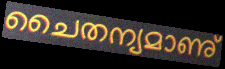
ചൈതന്യമാണു്